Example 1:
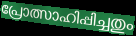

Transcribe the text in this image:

പ്രോത്സാഹിപ്പിച്ചതും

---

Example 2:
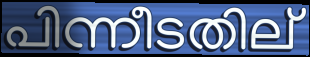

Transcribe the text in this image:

പിന്നീടതില്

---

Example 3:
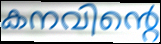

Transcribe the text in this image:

കനവിന്റെ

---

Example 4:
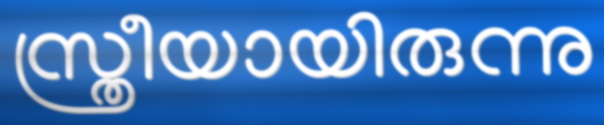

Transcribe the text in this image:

സ്ത്രീയായിരുന്നു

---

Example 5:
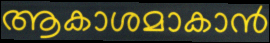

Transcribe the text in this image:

ആകാശമാകാൻ